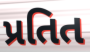
પ્રતિત